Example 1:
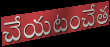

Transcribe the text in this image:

చేయటంచేత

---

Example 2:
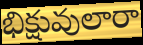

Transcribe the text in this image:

భిక్షువులారా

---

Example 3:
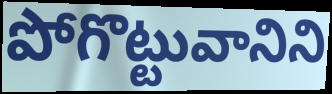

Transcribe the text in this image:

పోగొట్టువానిని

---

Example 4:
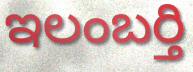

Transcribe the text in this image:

ఇలంబర్తి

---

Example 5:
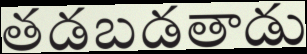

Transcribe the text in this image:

తడబడతాడు